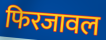
फिरजावल